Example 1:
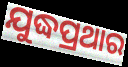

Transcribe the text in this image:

ଯୁଦ୍ଧପ୍ରଥାର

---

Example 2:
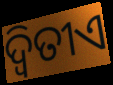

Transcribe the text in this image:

ଦ୍ୱିତୀଏ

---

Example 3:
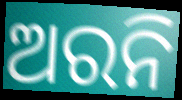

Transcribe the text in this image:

ଅରନି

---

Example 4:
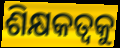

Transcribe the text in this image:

ଶିକ୍ଷକତ୍ଵକୁ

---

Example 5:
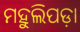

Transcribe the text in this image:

ମହୁଲିପଡ଼ା